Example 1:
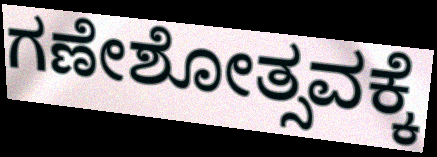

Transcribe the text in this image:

ಗಣೇಶೋತ್ಸವಕ್ಕೆ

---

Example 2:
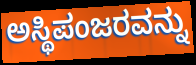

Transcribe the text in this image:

ಅಸ್ಥಿಪಂಜರವನ್ನು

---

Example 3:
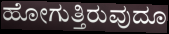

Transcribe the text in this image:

ಹೋಗುತ್ತಿರುವುದೂ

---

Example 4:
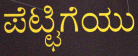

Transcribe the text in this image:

ಪೆಟ್ಟಿಗೆಯು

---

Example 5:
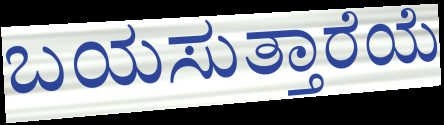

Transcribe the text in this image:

ಬಯಸುತ್ತಾರೆಯೆ